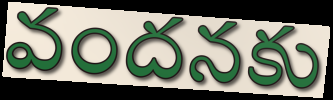
వందనకు